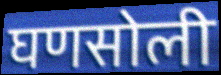
घणसोली